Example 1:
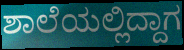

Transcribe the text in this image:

ಶಾಲೆಯಲ್ಲಿದ್ದಾಗ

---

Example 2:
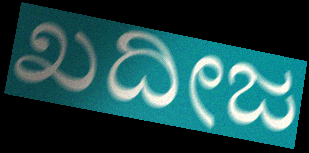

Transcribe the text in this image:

ಖದೀಜ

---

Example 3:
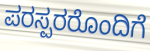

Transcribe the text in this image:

ಪರಸ್ಪರರೊಂದಿಗೆ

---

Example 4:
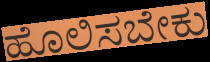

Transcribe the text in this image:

ಹೊಲಿಸಬೇಕು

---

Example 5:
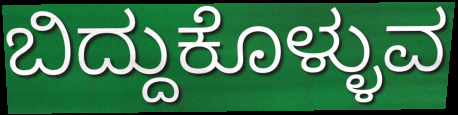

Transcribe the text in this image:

ಬಿದ್ದುಕೊಳ್ಳುವ